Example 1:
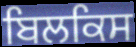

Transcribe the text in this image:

ਬਿਲਕਿਸ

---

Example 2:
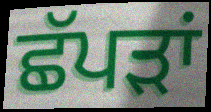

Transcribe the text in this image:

ਛੱਪੜਾਂ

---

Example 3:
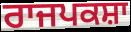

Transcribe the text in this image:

ਰਾਜਪਕਸ਼ਾ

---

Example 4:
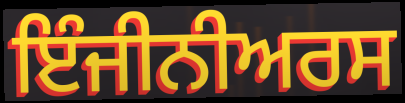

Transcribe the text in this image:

ਇੰਜੀਨੀਅਰਸ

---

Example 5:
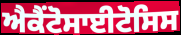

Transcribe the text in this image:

ਐਕੈਂਟੋਸਾਈਟੋਸਿਸ